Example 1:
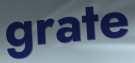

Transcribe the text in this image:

grate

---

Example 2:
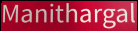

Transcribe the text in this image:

Manithargal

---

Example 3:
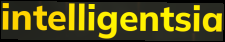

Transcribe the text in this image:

intelligentsia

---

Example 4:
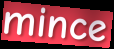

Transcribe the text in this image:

mince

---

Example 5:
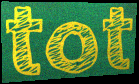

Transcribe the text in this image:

tot